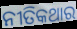
ନୀତିକଥାର